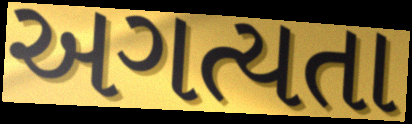
અગત્યતા